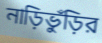
নাড়িভুঁড়ির